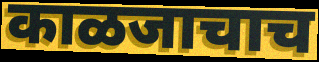
काळजाचाच